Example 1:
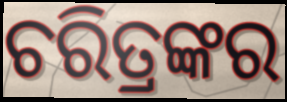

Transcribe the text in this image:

ଚରିତ୍ରଙ୍କର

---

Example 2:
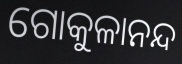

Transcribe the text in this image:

ଗୋକୁଳାନନ୍ଦ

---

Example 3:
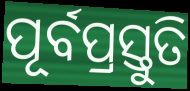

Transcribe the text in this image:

ପୂର୍ବପ୍ରସ୍ତୁତି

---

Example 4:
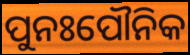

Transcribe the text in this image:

ପୁନଃପୌନିକ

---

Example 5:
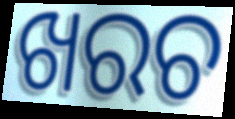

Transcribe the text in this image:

ଖରଚ